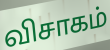
விசாகம்